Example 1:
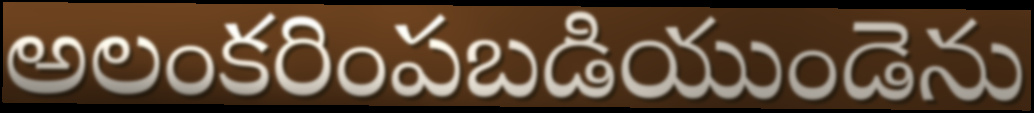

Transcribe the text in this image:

అలంకరింపబడియుండెను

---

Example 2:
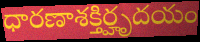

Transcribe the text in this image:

ధారణాశక్తిర్హృదయం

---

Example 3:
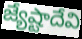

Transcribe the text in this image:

జ్యేష్టాదేవి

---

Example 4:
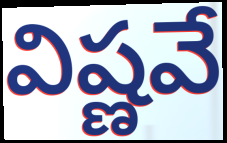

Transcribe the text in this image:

విష్ణవే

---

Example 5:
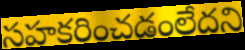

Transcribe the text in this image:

సహకరించడంలేదని